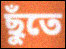
ছুঁতে